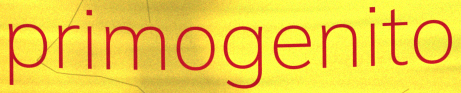
primogenito